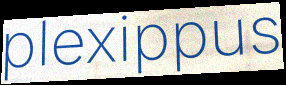
plexippus